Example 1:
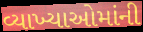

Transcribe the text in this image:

વ્યાખ્યાઓમાંની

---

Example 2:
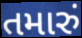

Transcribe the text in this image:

તમારું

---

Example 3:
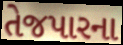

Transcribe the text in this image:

તેજપારના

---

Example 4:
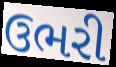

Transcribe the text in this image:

ઉભરી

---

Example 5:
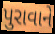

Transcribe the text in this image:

પુરાવાને